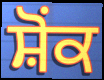
ਸ਼ੋਂਕ